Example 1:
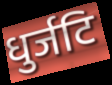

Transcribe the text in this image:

धुर्जटि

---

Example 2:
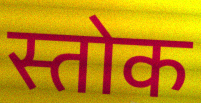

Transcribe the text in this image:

स्तोक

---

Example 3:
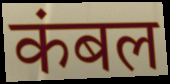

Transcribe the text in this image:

कंबल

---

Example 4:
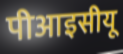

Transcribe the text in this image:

पीआइसीयू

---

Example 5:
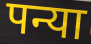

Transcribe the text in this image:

पन्या